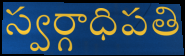
స్వర్గాధిపతి